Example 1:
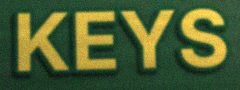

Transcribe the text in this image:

KEYS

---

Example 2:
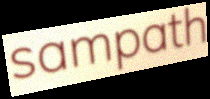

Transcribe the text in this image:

sampath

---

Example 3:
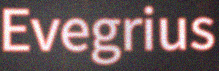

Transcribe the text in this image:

Evegrius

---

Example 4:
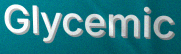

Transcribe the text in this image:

Glycemic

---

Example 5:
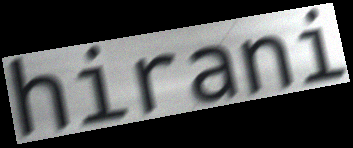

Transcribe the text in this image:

hirani